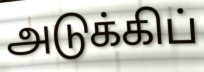
அடுக்கிப்